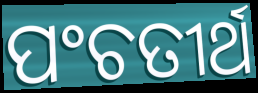
ପଂଚତୀର୍ଥ